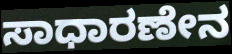
ಸಾಧಾರಣೇನ